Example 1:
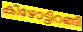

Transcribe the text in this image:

കീഴോട്ടിറങ്ങി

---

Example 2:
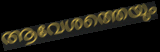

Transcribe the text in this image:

ആവേശത്തെയും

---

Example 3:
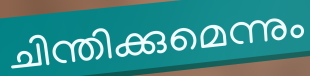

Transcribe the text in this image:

ചിന്തിക്കുമെന്നും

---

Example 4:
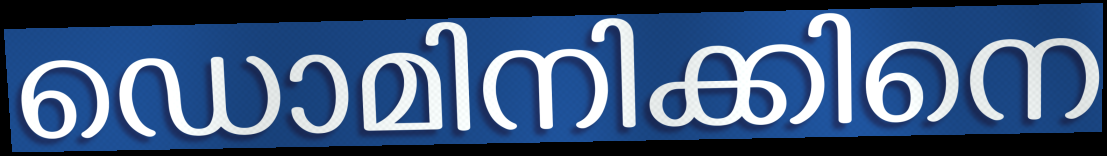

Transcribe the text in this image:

ഡൊമിനിക്കിനെ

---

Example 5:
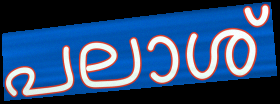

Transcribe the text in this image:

പലാശ്